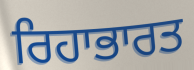
ਰਿਹਾਭਾਰਤ